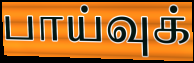
பாய்வுக்